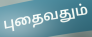
புதைவதும்